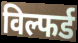
विल्फर्ड